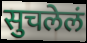
सुचलेलं